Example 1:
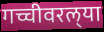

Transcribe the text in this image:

गच्चीवरल्या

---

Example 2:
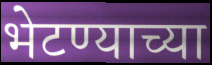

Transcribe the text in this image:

भेटण्याच्या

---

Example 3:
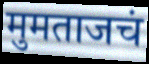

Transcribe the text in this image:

मुमताजचं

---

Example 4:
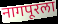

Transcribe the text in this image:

नागपूरला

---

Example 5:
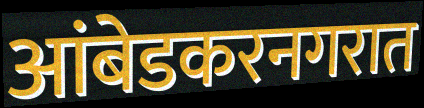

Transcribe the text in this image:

आंबेडकरनगरात